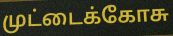
முட்டைக்கோசு